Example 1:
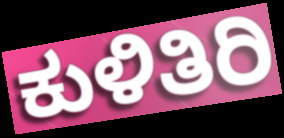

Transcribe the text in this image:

ಕುಳಿತಿರಿ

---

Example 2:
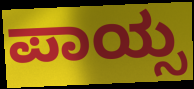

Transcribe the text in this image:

ಪಾಯ್ಸ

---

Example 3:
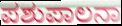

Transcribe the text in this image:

ಪಶುಪಾಲನಾ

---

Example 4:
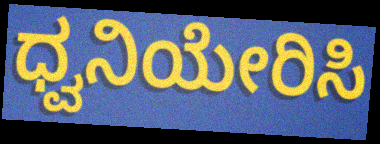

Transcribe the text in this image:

ಧ್ವನಿಯೇರಿಸಿ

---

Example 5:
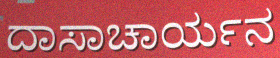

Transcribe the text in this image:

ದಾಸಾಚಾರ್ಯನ